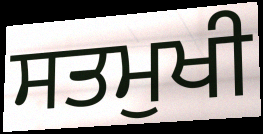
ਸਤਮੁਖੀ